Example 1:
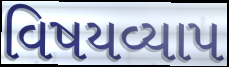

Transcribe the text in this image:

વિષયવ્યાપ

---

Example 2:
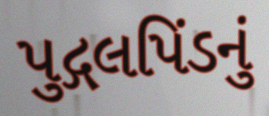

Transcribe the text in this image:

પુદ્ગલપિંડનું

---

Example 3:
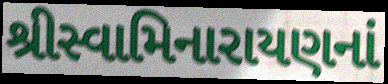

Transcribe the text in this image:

શ્રીસ્વામિનારાયણનાં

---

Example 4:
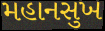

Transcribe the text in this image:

મહાનસુખ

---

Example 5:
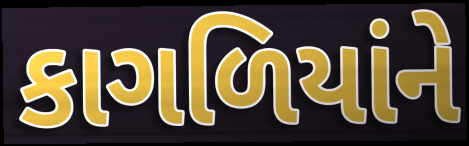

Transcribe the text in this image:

કાગળિયાંને